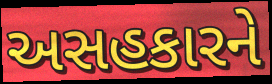
અસહકારને